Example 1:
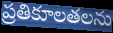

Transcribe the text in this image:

ప్రతికూలతలను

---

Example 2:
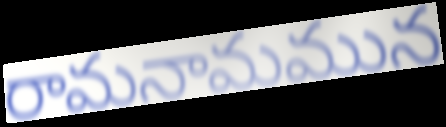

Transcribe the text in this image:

రామనామమున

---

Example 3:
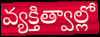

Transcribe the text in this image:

వ్యక్తిత్వాల్లో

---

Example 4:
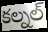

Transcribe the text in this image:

కల్నల్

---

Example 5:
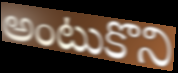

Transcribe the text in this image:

అంటుకొని